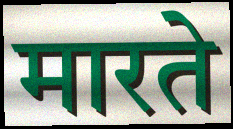
मारते